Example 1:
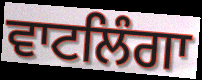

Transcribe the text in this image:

ਵਾਟਲਿੰਗਾ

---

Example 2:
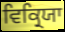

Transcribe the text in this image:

ਵਿਕ੍ਰਿਯਾ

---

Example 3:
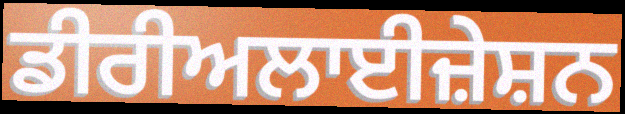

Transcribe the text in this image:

ਡੀਰੀਅਲਾਈਜ਼ੇਸ਼ਨ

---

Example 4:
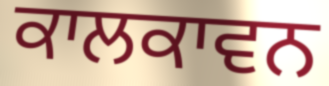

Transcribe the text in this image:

ਕਾਲਕਾਵਨ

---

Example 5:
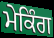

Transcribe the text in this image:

ਮੇਕਿੰਗ